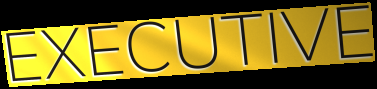
EXECUTIVE